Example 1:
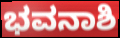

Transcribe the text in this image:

ಭವನಾಶಿ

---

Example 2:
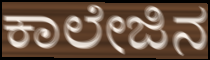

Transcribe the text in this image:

ಕಾಲೇಜಿನ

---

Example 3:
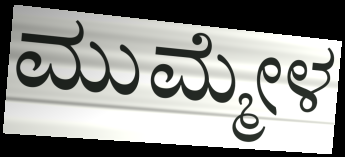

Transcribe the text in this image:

ಮುಮ್ಮೇಳ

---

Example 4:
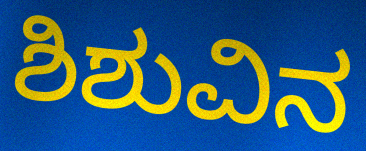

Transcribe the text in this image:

ಶಿಶುವಿನ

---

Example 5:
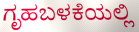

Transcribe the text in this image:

ಗೃಹಬಳಕೆಯಲ್ಲಿ